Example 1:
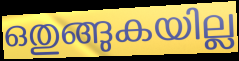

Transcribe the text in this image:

ഒതുങ്ങുകയില്ല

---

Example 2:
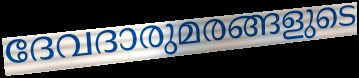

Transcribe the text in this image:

ദേവദാരുമരങ്ങളുടെ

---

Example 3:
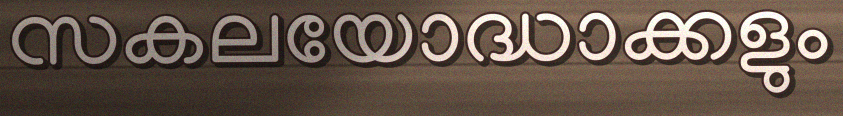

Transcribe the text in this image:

സകലയോദ്ധാക്കളും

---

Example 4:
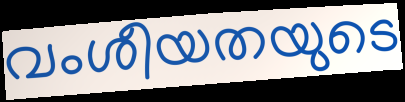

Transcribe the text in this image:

വംശീയതയുടെ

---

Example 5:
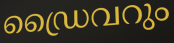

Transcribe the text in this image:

ഡ്രൈവറും